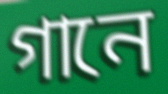
গানে